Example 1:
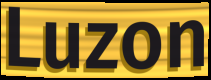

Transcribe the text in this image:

Luzon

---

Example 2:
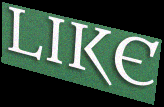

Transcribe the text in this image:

LIKE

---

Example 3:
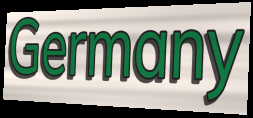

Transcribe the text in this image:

Germany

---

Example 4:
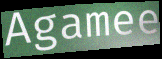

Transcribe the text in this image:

Agamee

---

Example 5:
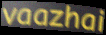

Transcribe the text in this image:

vaazhai